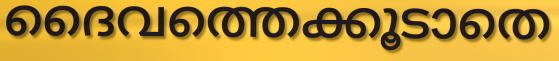
ദൈവത്തെക്കൂടാതെ